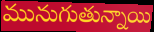
మునుగుతున్నాయి